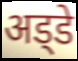
अड्‍डे